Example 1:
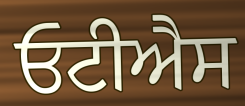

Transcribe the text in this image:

ਓਟੀਐਸ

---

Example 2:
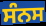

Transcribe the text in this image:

ਸੰਨਸ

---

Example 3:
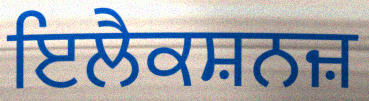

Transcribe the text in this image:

ਇਲੈਕਸ਼ਨਜ਼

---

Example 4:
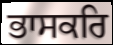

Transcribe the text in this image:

ਭਾਸਕਰਿ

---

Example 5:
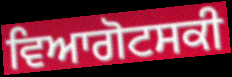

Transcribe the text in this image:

ਵਿਆਗੋਟਸਕੀ